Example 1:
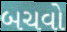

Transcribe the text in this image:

બચવો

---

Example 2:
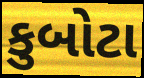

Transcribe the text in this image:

કુબોટા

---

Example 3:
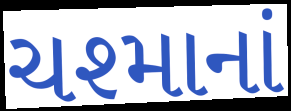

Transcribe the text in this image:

ચશ્માનાં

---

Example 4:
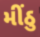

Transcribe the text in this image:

મીંઠુ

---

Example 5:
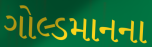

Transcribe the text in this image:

ગોલ્ડમાનના